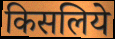
किसलिये